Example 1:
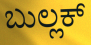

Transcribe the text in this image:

ಬುಲ್ಲಕ್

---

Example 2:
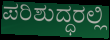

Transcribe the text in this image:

ಪರಿಶುದ್ಧರಲ್ಲಿ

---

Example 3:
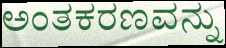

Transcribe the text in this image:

ಅಂತಕರಣವನ್ನು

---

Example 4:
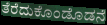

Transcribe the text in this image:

ತೆರೆದುಕೊಂಡೊಡನೆ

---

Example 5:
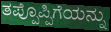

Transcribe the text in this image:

ತಪ್ಪೊಪ್ಪಿಗೆಯನ್ನು